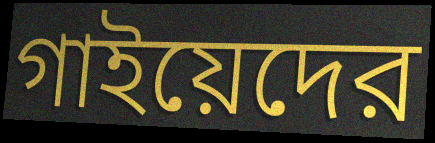
গাইয়েদের